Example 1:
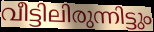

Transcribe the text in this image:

വീട്ടിലിരുന്നിട്ടും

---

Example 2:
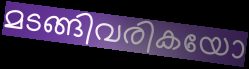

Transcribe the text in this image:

മടങ്ങിവരികയോ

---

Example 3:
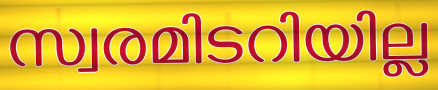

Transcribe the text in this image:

സ്വരമിടറിയില്ല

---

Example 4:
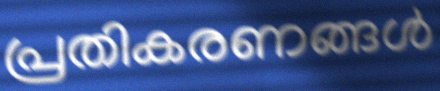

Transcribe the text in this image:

പ്രതികരണങ്ങൾ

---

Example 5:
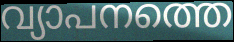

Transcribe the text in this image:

വ്യാപനത്തെ